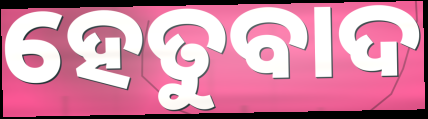
ହେତୁବାଦ